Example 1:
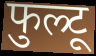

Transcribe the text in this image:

फुल्टू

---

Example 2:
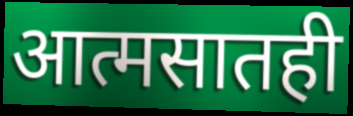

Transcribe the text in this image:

आत्मसातही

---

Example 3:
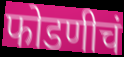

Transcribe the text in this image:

फोडणीचं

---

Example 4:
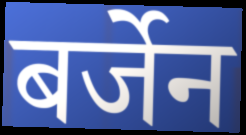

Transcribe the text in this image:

बर्जेन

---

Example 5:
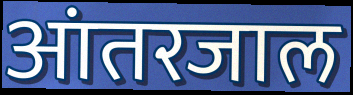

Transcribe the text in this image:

आंतरजाल